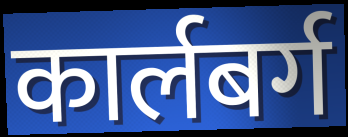
कार्लबर्ग